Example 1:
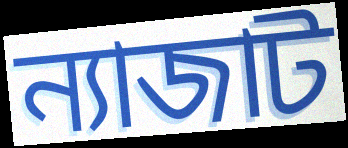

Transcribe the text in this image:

ন্যাজাট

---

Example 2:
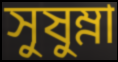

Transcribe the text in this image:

সুষুম্না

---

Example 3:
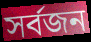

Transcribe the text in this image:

সর্বজন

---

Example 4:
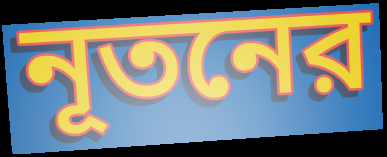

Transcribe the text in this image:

নূতনের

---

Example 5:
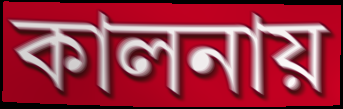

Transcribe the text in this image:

কালনায়